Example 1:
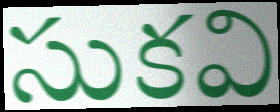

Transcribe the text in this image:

సుకవి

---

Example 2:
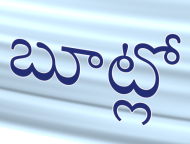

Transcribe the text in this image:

బూట్లో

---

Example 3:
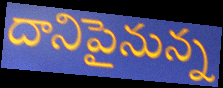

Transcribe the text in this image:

దానిపైనున్న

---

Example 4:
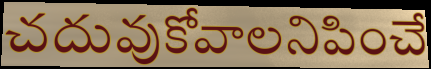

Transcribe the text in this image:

చదువుకోవాలనిపించే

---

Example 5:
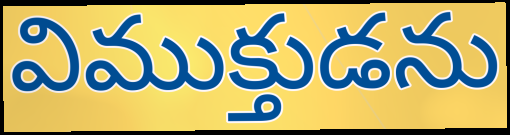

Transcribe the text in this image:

విముక్తుడను